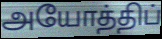
அயோத்திப்